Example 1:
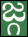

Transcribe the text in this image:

జ్గ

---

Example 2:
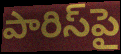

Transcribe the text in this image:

పారిస్‌పై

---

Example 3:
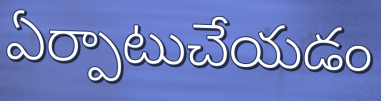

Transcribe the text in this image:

ఏర్పాటుచేయడం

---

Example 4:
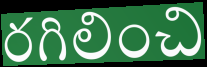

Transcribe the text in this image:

రగిలించి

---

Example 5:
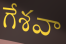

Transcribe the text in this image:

గేశవా